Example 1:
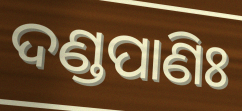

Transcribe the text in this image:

ଦଣ୍ଡପାଣିଃ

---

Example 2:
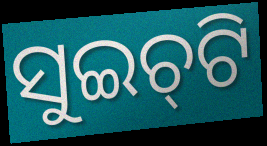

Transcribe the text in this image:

ସୁଇଚ୍‌ଟି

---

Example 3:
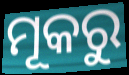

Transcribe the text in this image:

ମୂକରୁ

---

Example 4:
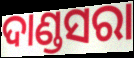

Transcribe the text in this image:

ଦାଣ୍ଡସରା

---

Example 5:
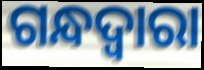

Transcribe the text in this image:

ଗନ୍ଧଦ୍ୱାରା